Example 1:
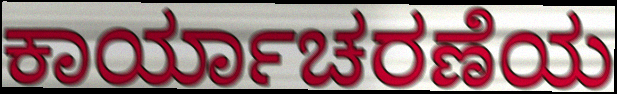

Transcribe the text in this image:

ಕಾರ್ಯಾಚರಣೆಯ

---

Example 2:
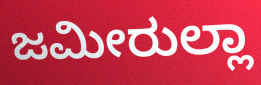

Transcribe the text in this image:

ಜಮೀರುಲ್ಲಾ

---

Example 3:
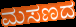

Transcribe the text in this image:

ಮಸಣದ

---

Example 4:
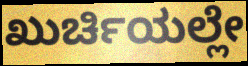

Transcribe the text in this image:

ಖುರ್ಚಿಯಲ್ಲೇ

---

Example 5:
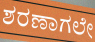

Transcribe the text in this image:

ಶರಣಾಗಲೇ